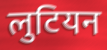
लुटियन